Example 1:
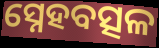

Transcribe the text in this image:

ସ୍ନେହବତ୍ସଳ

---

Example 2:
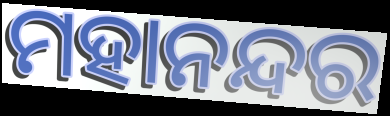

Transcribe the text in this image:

ମହାନନ୍ଦର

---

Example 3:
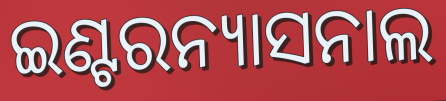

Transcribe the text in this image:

ଇଣ୍ଟରନ୍ୟାସନାଲ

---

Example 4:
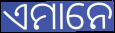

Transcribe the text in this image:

ଏମାନେ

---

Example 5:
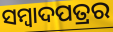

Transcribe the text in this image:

ସମ୍ବାଦପତ୍ରର